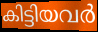
കിട്ടിയവർ